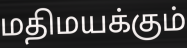
மதிமயக்கும்